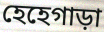
হেহেগাড়া